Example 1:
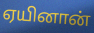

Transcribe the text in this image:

ஏயினான்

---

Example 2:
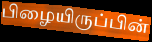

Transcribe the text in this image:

பிழையிருப்பின்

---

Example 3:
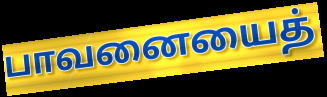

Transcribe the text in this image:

பாவனையைத்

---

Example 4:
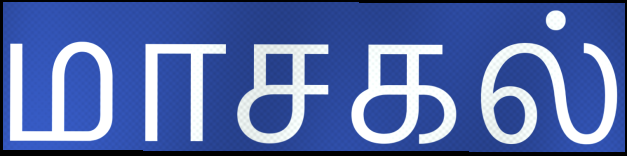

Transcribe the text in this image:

மாசகல்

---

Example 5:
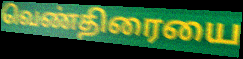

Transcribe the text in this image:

வெண்திரையை